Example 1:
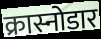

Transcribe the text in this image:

क्रास्नोडार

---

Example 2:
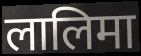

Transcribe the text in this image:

लालिमा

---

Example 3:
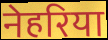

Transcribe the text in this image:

नेहरिया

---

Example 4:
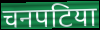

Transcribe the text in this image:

चनपटिया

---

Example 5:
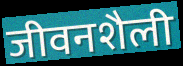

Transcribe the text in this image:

जीवनशैली